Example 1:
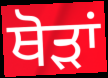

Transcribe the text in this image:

ਥੋੜਾਂ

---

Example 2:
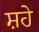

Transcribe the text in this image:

ਸ਼ਹੇ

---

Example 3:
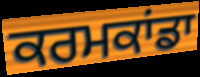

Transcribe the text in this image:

ਕਰਮਕਾਂਡਾ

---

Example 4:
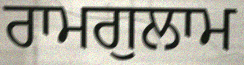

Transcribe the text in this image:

ਰਾਮਗੁਲਾਮ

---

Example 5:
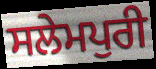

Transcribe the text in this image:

ਸਲੇਮਪੁਰੀ